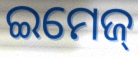
ଇମେଜ୍